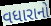
વધારાનો